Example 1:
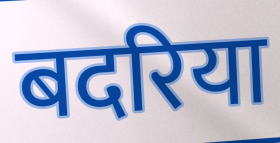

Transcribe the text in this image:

बदरिया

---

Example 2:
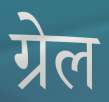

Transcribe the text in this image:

ग्रेल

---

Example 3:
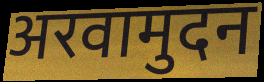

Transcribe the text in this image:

अरवामुदन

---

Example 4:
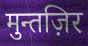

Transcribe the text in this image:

मुन्तज़िर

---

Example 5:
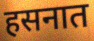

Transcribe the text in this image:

हसनात